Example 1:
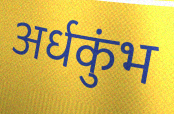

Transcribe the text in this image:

अर्धकुंभ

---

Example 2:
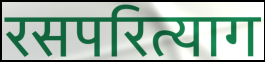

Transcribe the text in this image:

रसपरित्याग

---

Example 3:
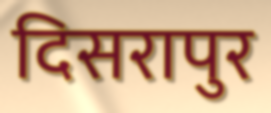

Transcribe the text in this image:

दिसरापुर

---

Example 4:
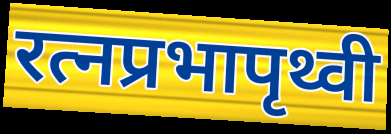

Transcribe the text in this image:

रत्नप्रभापृथ्वी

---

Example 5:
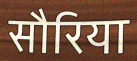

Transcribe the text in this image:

सौरिया